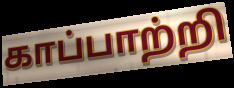
காப்பாற்றி